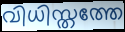
വിധിസ്തത്തേ